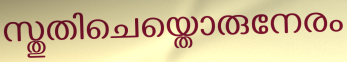
സ്തുതിചെയ്തൊരുനേരം